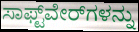
ಸಾಫ್ಟ್‌ವೇರ್‌ಗಳನ್ನು